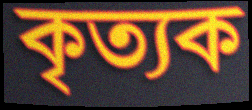
কৃত্যক